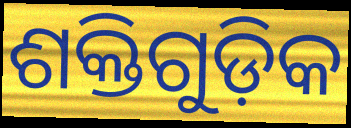
ଶକ୍ତିଗୁଡ଼ିକ